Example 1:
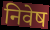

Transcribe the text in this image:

निवेष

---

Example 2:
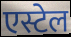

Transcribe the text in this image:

एस्टेल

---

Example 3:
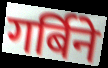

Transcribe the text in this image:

गर्बिने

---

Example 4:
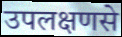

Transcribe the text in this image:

उपलक्षणसे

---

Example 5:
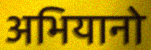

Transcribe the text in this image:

अभियानो